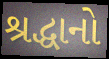
શ્રદ્ધાનો